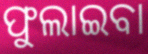
ଫୁଲାଇବା